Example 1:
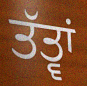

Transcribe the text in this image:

ਤੱਤ੍ਵਾਂ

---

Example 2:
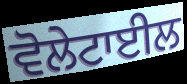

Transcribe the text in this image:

ਵੋਲੇਟਾਈਲ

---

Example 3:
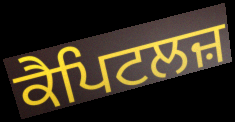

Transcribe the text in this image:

ਕੈਪਿਟਲਜ਼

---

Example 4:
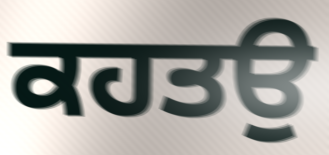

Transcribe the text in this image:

ਕਹਤਉ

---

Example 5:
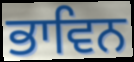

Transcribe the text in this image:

ਭਾਵਿਨ